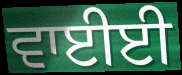
ਵਾਈਈ